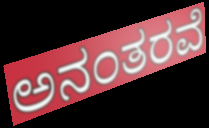
ಅನಂತರವೆ